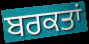
ਬਰਕਤਾਂ